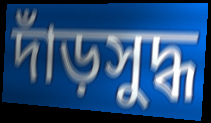
দাঁড়সুদ্ধ